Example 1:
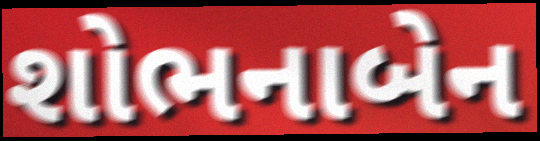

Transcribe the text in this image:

શોભનાબેન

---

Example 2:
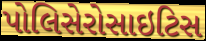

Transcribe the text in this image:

પોલિસેરોસાઇટિસ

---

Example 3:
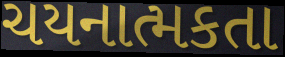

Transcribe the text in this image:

ચયનાત્મકતા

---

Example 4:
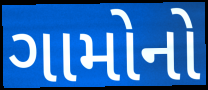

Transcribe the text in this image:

ગામોનો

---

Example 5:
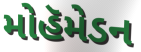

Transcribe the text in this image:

મોહૅમેડન